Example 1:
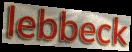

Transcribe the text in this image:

lebbeck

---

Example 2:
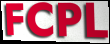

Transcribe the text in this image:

FCPL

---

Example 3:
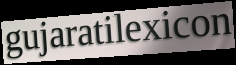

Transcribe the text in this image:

gujaratilexicon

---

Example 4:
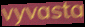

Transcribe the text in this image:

vyvasta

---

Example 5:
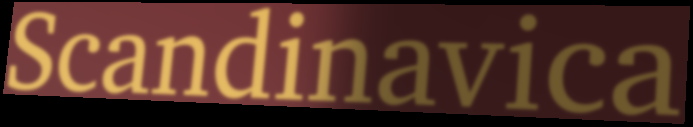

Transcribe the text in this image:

Scandinavica